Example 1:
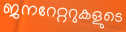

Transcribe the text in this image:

ജനറേറ്ററുകളുടെ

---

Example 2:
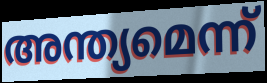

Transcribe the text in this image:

അന്ത്യമെന്ന്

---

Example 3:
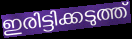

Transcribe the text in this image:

ഇരിട്ടിക്കടുത്ത്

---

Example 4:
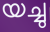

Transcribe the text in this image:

യച്ചു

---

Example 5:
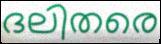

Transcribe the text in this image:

ദലിതരെ